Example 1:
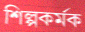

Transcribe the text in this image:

শিল্পকৰ্মক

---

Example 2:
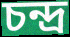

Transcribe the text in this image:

চন্দ্ৰ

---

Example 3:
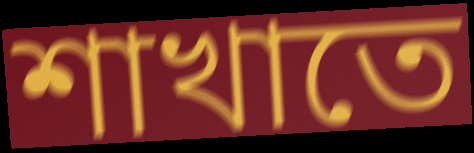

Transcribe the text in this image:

শাখাতে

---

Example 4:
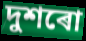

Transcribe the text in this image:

দুশৰো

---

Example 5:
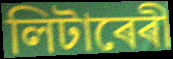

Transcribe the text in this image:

লিটাৰেৰী